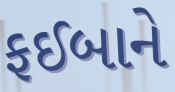
ફઈબાને